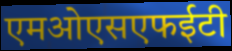
एमओएसएफईटी